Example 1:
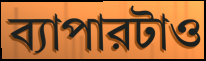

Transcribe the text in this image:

ব্যাপারটাও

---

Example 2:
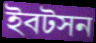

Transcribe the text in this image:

ইবটসন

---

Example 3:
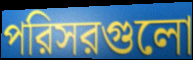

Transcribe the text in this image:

পরিসরগুলো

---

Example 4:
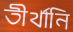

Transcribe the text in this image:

তীর্থানি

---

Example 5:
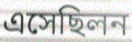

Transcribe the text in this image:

এসেছিলন